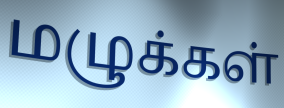
மழுக்கள்